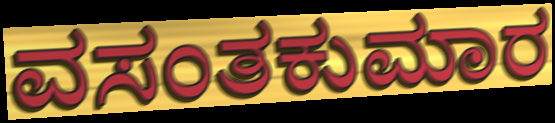
ವಸಂತಕುಮಾರ